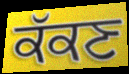
ਕੱਕਣ